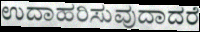
ಉದಾಹರಿಸುವುದಾದರೆ